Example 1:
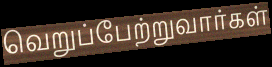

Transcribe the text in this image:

வெறுப்பேற்றுவார்கள்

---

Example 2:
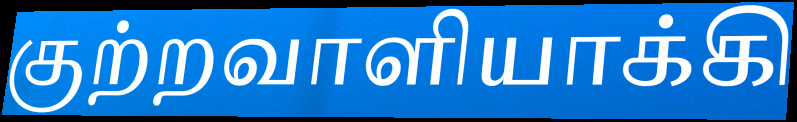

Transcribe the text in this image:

குற்றவாளியாக்கி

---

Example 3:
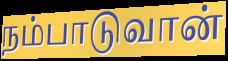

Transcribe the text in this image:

நம்பாடுவான்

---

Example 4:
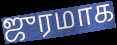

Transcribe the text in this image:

ஜுரமாக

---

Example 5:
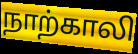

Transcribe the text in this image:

நாற்காலி